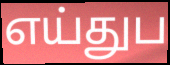
எய்துப